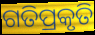
ଗତିପ୍ରକୃତି